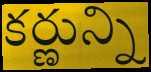
కర్ణున్ని